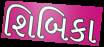
શિબિકા